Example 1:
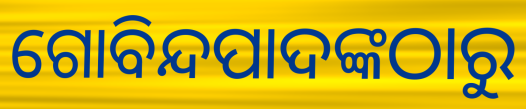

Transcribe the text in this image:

ଗୋବିନ୍ଦପାଦଙ୍କଠାରୁ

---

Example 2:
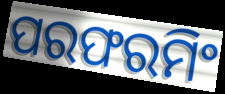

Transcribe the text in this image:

ପରଫରମିଂ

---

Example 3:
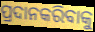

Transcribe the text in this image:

ପ୍ରଦାନକରିବାକୁ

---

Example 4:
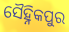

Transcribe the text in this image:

ସୈହ୍ନିକପୁର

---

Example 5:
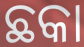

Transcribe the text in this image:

ଛକା